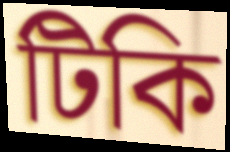
টিকি